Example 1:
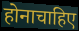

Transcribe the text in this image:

होनाचाहिए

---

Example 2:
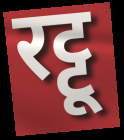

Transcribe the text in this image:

रट्टू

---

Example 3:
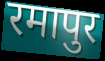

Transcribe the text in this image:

रमापुर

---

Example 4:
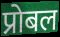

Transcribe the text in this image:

प्रोबल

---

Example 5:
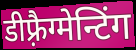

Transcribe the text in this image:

डीफ़्रैग्मेन्टिंग